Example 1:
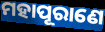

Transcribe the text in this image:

ମହାପୂରାଣେ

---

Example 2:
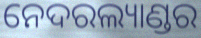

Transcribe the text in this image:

ନେଦରଲ୍ୟାଣ୍ଡର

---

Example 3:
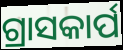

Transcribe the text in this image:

ଗ୍ରାସକାର୍ପ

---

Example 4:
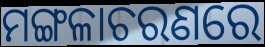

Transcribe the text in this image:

ମଙ୍ଗଳାଚରଣରେ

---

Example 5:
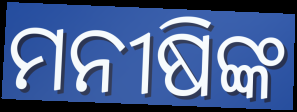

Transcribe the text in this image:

ମନୀଷିଙ୍କ